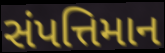
સંપત્તિમાન